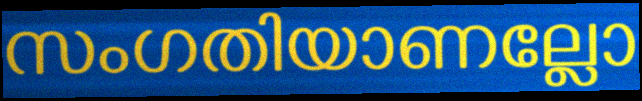
സംഗതിയാണല്ലോ